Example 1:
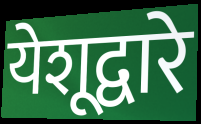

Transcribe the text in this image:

येशूद्वारे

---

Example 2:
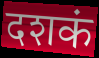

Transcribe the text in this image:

दशकं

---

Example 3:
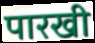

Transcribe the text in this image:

पारखी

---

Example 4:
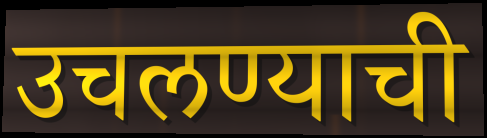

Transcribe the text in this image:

उचलण्याची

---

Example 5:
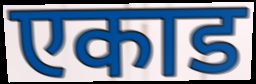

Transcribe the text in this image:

एकाड